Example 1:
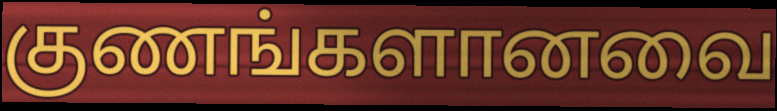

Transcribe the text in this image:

குணங்களானவை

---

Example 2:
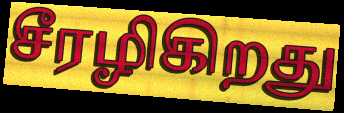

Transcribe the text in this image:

சீரழிகிறது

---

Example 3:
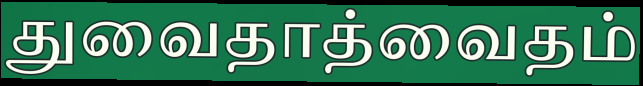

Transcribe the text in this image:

துவைதாத்வைதம்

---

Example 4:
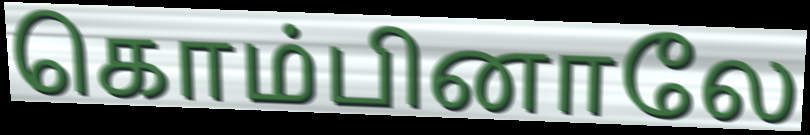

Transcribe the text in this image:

கொம்பினாலே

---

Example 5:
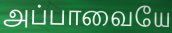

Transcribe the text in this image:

அப்பாவையே